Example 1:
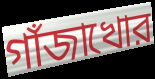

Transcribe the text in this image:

গাঁজাখোর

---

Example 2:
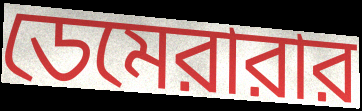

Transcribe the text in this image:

ডেমেরারার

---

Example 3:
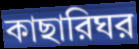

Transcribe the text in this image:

কাছারিঘর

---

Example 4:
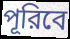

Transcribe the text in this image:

পূরিবে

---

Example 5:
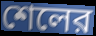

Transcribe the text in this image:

শেলের